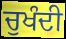
ਚੁਖੰਦੀ